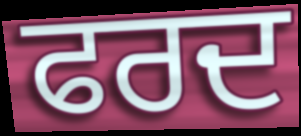
ਫਰਦ